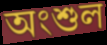
অংশুল